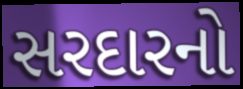
સરદારનો